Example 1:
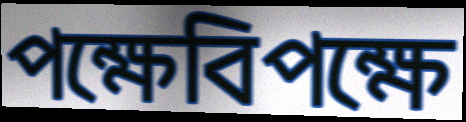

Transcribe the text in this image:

পক্ষেবিপক্ষে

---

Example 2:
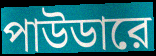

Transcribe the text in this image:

পাউডারে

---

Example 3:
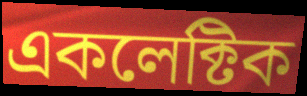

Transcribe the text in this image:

একলেক্টিক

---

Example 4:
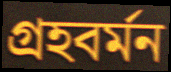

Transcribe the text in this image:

গ্রহবর্মন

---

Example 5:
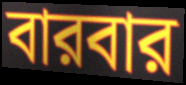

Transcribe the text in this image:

বারবার